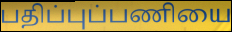
பதிப்புப்பணியை